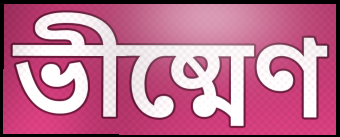
ভীষ্মেণ